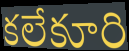
కలేకూరి